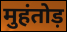
मुहंतोड़